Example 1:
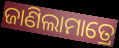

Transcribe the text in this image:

ଜାଣିଲାମାତ୍ରେ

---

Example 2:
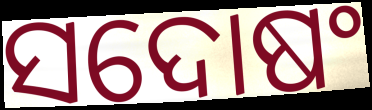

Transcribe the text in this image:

ସଦୋଷଂ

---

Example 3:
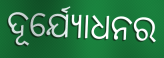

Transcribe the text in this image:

ଦୂର୍ଯ୍ୟୋଧନର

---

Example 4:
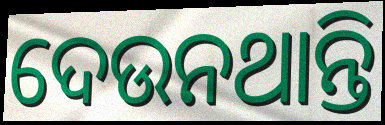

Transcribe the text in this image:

ଦେଉନଥାନ୍ତି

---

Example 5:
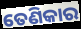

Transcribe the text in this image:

ତେଣିକାର